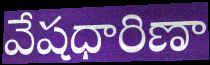
వేషధారిణా